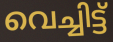
വെച്ചിട്ട്